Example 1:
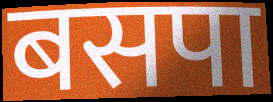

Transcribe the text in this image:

बसपा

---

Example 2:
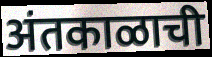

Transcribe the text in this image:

अंतकाळाची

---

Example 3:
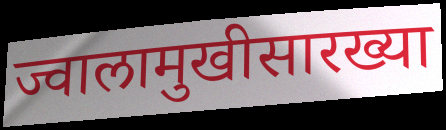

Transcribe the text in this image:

ज्वालामुखीसारख्या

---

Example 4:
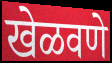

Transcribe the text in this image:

खेळवणे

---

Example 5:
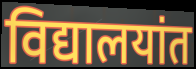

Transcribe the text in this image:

विद्यालयांत